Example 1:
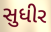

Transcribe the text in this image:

સુધીર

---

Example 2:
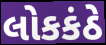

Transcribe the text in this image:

લોકકંઠે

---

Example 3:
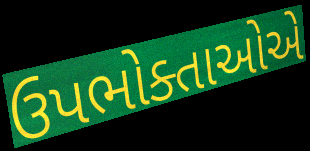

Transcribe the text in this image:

ઉપભોક્તાઓએ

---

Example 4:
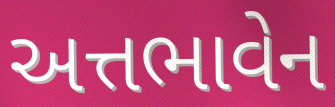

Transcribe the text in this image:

અત્તભાવેન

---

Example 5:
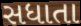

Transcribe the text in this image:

સધાતા